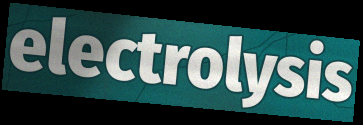
electrolysis